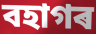
বহাগৰ